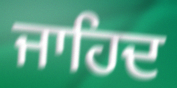
ਜਾਹਿਦ